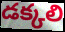
డక్కలి